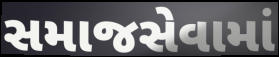
સમાજસેવામાં